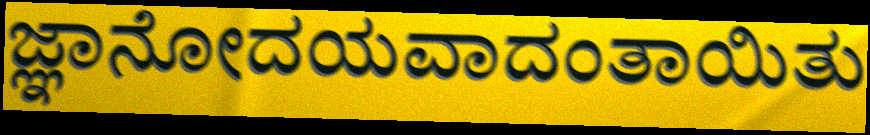
ಜ್ಞಾನೋದಯವಾದಂತಾಯಿತು